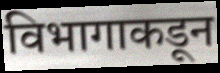
विभागाकडून